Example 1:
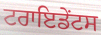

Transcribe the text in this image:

ਟਰਾਇਡੇਂਟਸ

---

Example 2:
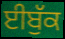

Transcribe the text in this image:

ਈਬੁੱਕ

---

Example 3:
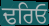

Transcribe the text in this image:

ਢਰਿਓ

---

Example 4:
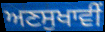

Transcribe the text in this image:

ਅਣਸੁਖਾਵੀਂ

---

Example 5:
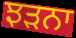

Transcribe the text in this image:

ਝੜਨਾ